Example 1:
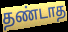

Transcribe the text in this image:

தண்டாத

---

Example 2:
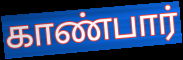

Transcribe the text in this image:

காண்பார்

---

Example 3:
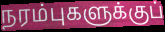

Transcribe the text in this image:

நரம்புகளுக்குப்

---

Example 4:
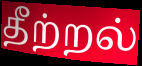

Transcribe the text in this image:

தீற்றல்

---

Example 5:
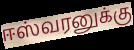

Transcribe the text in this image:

ஈஸ்வரனுக்கு